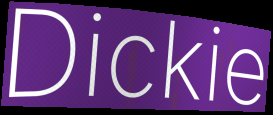
Dickie